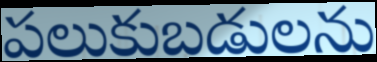
పలుకుబడులను